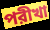
পরীখা